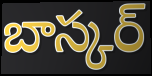
బాస్కర్